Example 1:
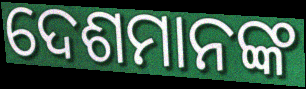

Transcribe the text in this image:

ଦେଶମାନଙ୍କ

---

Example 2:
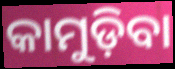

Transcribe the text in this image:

କାମୁଡ଼ିବା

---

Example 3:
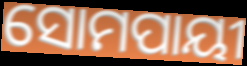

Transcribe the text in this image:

ସୋମପାୟୀ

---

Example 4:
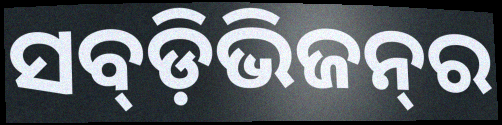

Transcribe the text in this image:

ସବ୍‍ଡ଼ିଭିଜନ୍‍ର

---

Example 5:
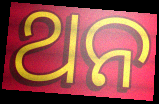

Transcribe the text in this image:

ଥନ